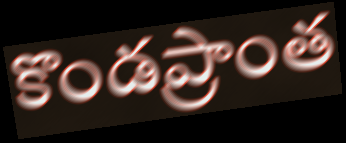
కొండప్రాంత